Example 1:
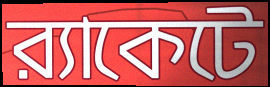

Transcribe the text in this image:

র‍্যাকেটে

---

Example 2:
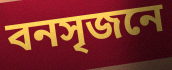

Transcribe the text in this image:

বনসৃজনে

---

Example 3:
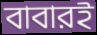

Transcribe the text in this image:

বাবারই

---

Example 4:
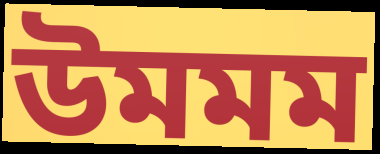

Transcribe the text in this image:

উমমম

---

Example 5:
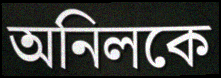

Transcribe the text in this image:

অনিলকে